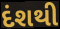
દંશથી